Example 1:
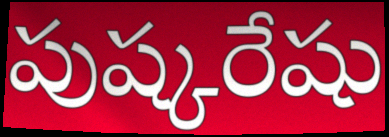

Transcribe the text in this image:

పుష్కరేషు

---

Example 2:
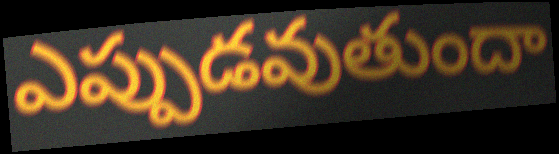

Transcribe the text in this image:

ఎప్పుడవుతుందా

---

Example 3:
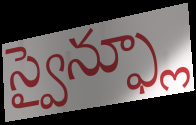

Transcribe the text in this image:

స్వైన్ఫ్లూ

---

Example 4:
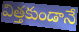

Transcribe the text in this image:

విత్తకుండానే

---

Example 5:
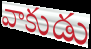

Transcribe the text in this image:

వాకుడు